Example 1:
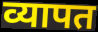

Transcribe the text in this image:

व्यापत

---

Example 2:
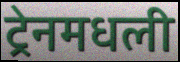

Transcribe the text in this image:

ट्रेनमधली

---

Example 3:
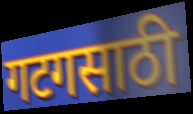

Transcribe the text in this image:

गटगसाठी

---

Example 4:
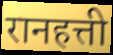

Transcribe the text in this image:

रानहत्ती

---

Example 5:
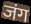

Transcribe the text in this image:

जंग